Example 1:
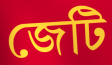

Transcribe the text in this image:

জেটি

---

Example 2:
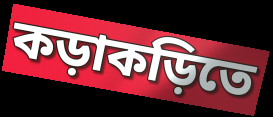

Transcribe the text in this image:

কড়াকড়িতে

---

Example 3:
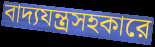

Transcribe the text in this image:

বাদ্যযন্ত্রসহকারে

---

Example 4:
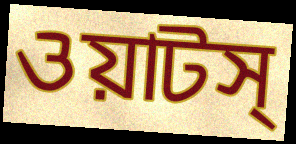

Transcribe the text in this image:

ওয়াটস্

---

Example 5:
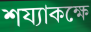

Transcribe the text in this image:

শয্যাকক্ষে